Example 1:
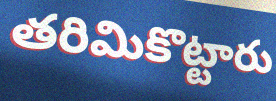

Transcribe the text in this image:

తరిమికొట్టారు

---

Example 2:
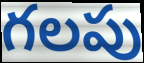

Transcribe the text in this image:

గలపు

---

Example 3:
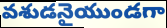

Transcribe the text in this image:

వశుడనైయుండగా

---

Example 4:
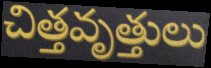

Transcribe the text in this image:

చిత్తవృత్తులు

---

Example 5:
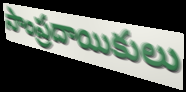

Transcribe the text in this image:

సాంప్రదాయికులు